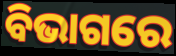
ବିଭାଗରେ